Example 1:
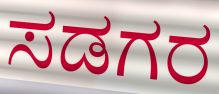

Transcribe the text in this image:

ಸಡಗರ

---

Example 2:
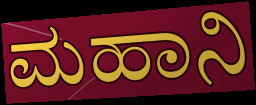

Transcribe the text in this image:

ಮಹಾನಿ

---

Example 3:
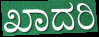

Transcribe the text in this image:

ಖಾದರಿ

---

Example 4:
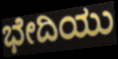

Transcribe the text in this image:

ಭೇದಿಯು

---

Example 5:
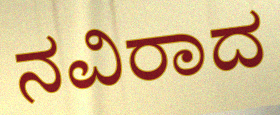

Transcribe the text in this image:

ನವಿರಾದ